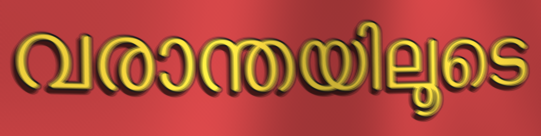
വരാന്തയിലൂടെ